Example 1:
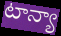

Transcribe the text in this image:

టాన్యా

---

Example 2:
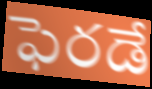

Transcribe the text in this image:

ఫెరడే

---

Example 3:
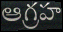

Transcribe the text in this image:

ఆగ్రహ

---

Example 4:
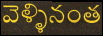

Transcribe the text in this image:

వెళ్ళినంత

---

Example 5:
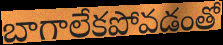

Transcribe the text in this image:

బాగాలేకపోవడంతో